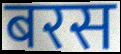
बरस